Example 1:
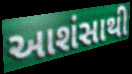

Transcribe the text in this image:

આશંસાથી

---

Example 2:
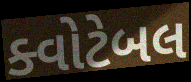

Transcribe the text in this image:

ક્વોટેબલ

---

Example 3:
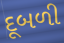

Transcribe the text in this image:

દૂબળી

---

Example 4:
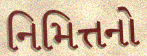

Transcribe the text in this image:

નિમિત્તનો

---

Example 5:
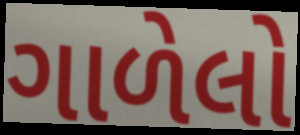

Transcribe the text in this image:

ગાળેલો